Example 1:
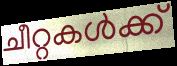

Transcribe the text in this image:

ചീറ്റകൾക്ക്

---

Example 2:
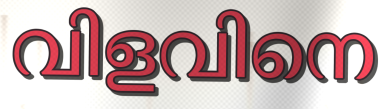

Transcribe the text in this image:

വിളവിനെ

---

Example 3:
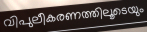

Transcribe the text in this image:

വിപുലീകരണത്തിലൂടെയും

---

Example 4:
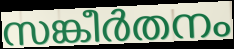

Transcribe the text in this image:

സങ്കീർതനം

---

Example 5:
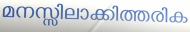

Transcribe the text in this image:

മനസ്സിലാക്കിത്തരിക